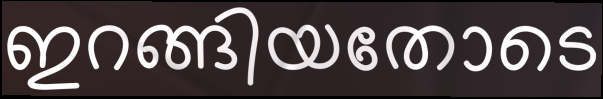
ഇറങ്ങിയതോടെ